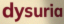
dysuria